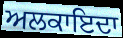
ਅਲਕਾਇਦਾ